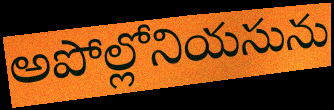
అపోల్లోనియసును